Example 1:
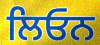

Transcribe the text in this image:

ਲਿਓਨ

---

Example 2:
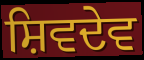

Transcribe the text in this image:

ਸ਼ਿਵਦੇਵ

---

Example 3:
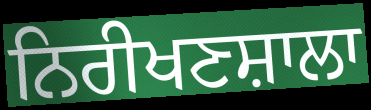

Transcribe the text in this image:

ਨਿਰੀਖਣਸ਼ਾਲਾ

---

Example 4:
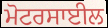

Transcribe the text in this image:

ਮੋਟਰਸਾਈਲ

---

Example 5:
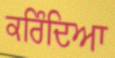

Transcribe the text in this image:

ਕਰਿੰਦਿਆ